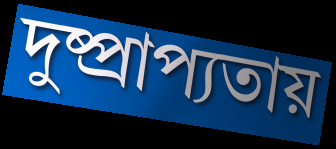
দুষ্প্রাপ্যতায়